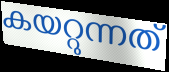
കയറ്റുന്നത്